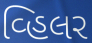
વ્હિલર